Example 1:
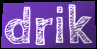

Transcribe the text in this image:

drik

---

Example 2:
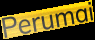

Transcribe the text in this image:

Perumai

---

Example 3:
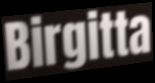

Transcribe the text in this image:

Birgitta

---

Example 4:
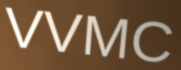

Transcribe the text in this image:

VVMC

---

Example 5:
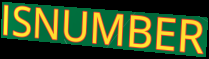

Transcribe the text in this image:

ISNUMBER